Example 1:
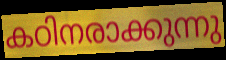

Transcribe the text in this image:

കഠിനരാക്കുന്നു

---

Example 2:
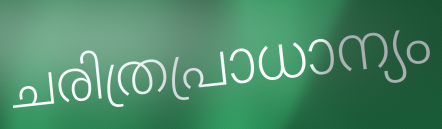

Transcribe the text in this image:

ചരിത്രപ്രാധാന്യം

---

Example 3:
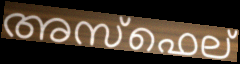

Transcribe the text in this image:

അസ്ഫെല്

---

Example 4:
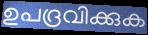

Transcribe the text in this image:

ഉപദ്രവിക്കുക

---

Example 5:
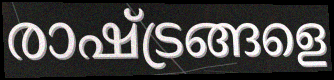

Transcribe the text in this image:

രാഷ്ട്രങ്ങളെ